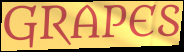
GRAPES